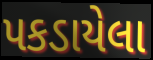
પકડાયેલા